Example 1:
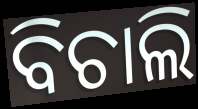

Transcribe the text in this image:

ବିଚାଲି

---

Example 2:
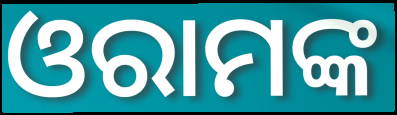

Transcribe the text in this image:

ଓରାମଙ୍କ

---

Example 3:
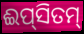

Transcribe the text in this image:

ଈପ୍‌ସିତମ୍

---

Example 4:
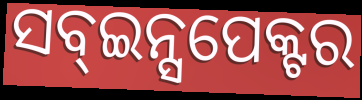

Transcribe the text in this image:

ସବ୍ଇନ୍ସପେକ୍ଟର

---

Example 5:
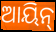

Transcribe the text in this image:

ଆୟିନ୍